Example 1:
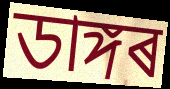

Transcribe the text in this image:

ডাঙ্গৰ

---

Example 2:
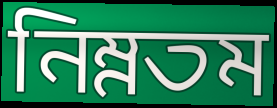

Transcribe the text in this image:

নিম্নতম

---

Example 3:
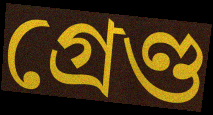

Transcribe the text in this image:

গ্ৰেণ্ড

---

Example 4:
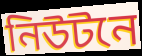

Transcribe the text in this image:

নিউটনে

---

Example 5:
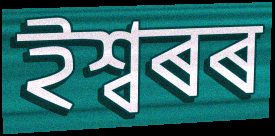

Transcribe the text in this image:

ইশ্বৰৰ